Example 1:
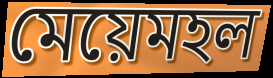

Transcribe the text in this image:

মেয়েমহল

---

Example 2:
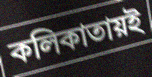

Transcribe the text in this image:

কলিকাতায়ই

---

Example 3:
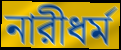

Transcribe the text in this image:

নারীধর্ম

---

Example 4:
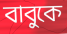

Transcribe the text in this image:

বাবুকে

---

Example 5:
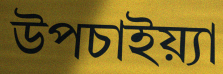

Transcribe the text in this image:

উপচাইয়্যা